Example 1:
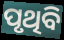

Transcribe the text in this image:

ପୃଥିବି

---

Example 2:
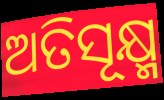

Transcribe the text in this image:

ଅତିସୂକ୍ଷ୍ମ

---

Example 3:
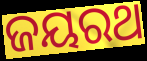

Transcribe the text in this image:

ଜୟରଥ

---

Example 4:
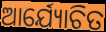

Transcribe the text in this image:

ଆର୍ଯ୍ୟୋଚିତ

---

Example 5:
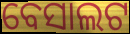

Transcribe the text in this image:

ବେସାଲଟ